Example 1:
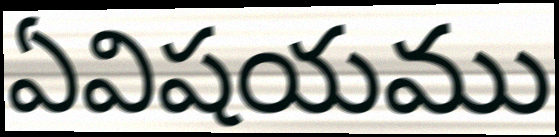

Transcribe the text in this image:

ఏవిషయము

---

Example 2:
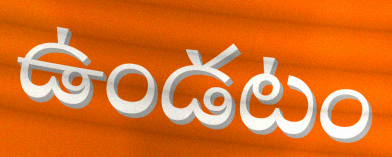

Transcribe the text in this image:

ఉండటం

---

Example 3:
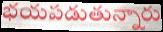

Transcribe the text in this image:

భయపడుతున్నారు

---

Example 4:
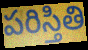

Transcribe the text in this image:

పరిస్తితి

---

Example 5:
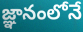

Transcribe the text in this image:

జ్ఞానంలోనే